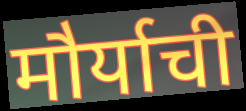
मौर्याची